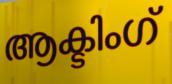
ആക്ടിംഗ്